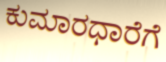
ಕುಮಾರಧಾರೆಗೆ